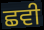
ਛਵੀ